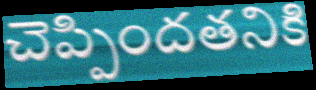
చెప్పిందతనికి